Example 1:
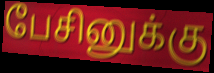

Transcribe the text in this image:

பேசினுக்கு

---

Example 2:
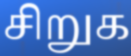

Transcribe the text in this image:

சிறுக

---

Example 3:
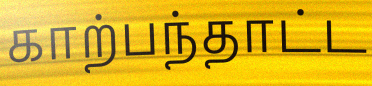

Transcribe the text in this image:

காற்பந்தாட்ட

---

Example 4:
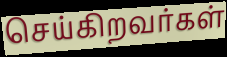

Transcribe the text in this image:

செய்கிறவர்கள்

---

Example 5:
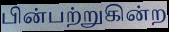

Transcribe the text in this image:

பின்பற்றுகின்ற